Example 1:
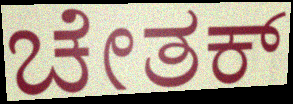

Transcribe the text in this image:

ಚೇತಕ್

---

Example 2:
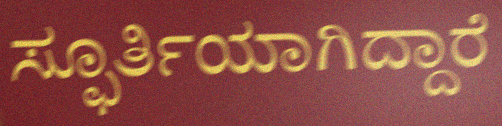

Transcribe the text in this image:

ಸ್ಫೂರ್ತಿಯಾಗಿದ್ದಾರೆ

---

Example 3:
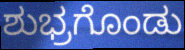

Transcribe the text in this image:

ಶುಭ್ರಗೊಂಡು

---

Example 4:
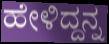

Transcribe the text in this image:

ಹೇಳಿದ್ದನ್ನ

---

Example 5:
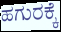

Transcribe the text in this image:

ಹಗುರಕ್ಕೆ